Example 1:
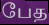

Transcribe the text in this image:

பேத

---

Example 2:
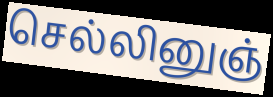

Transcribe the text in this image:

செல்லினுஞ்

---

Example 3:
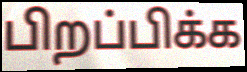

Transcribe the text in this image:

பிறப்பிக்க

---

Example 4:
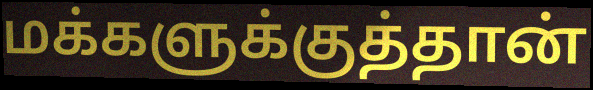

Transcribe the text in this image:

மக்களுக்குத்தான்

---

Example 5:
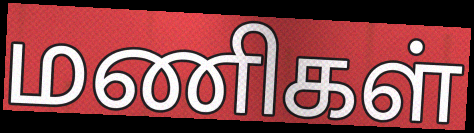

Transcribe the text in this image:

மணிகள்